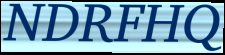
NDRFHQ